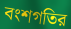
বংশগতির